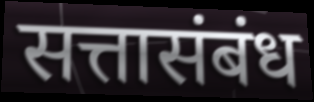
सत्तासंबंध